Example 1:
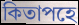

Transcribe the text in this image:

কিতাপহে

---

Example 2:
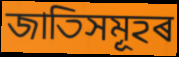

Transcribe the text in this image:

জাতিসমূহৰ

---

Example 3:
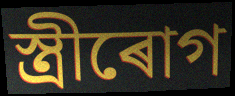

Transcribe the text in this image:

স্ত্ৰীৰোগ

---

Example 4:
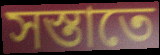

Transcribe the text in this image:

সস্তাতে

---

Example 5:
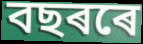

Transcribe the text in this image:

বছৰৰে